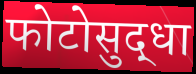
फोटोसुद्धा